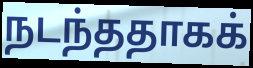
நடந்ததாகக்